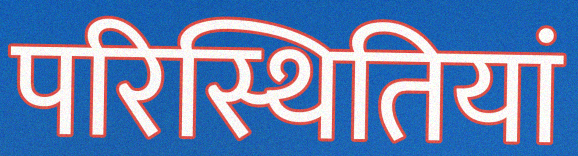
परिस्थितियां